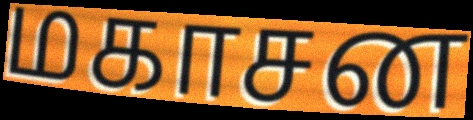
மகாசன